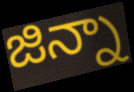
జిన్నా